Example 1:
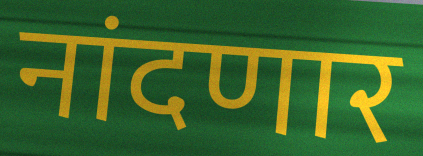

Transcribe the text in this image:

नांदणार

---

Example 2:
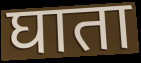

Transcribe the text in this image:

घाता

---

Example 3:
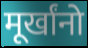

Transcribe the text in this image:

मूर्खांनो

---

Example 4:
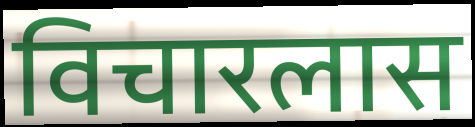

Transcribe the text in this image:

विचारलास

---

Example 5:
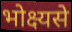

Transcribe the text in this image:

भोक्ष्यसे